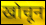
खोचून